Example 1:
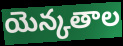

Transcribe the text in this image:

యెన్కతాల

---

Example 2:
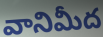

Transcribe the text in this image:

వానిమీద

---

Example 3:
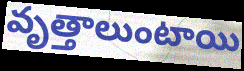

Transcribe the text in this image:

వృత్తాలుంటాయి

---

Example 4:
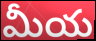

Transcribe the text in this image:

మీయ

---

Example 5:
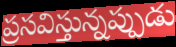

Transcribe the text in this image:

ప్రసవిస్తున్నప్పుడు